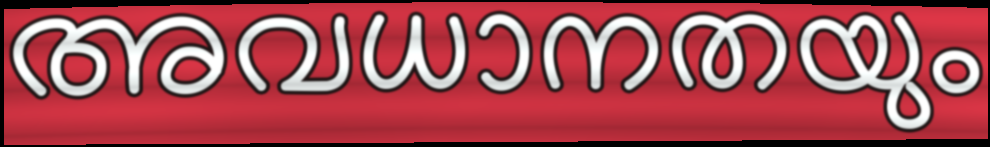
അവധാനതയും